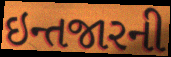
ઇન્તજારની